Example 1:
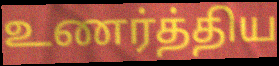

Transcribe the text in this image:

உணர்த்திய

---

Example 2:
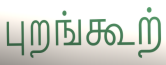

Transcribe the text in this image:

புறங்கூற்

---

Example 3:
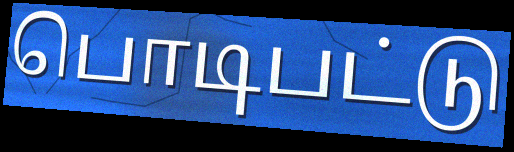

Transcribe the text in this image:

பொடிபட்டு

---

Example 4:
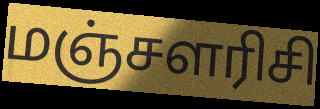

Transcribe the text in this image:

மஞ்சளரிசி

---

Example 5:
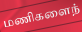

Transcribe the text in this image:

மணிகளைந்